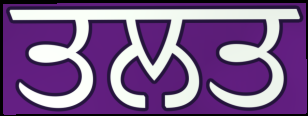
ਤਲਤ